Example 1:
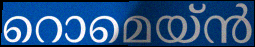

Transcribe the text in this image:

റൊമെയ്ൻ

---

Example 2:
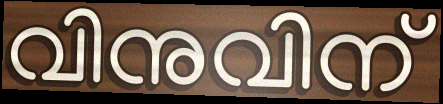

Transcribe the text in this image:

വിനുവിന്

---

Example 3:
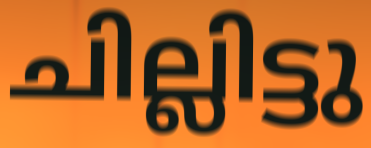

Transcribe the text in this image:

ചില്ലിട്ടു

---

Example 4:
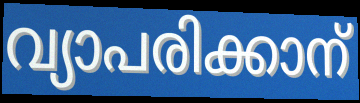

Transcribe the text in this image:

വ്യാപരിക്കാന്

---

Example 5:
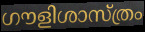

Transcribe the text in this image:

ഗൗളിശാസ്ത്രം